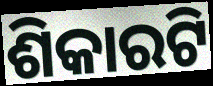
ଶିକାରଟି